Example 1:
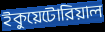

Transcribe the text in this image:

ইকুয়েটোরিয়াল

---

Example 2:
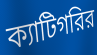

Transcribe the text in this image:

ক্যাটিগরির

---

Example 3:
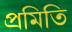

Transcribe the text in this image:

প্রমিতি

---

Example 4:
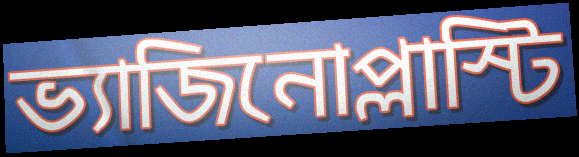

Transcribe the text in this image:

ভ্যাজিনোপ্লাস্টি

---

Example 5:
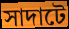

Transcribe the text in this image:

সাদাটে